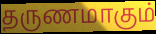
தருணமாகும்